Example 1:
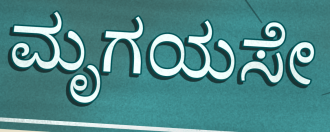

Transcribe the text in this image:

ಮೃಗಯಸೇ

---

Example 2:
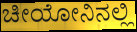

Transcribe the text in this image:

ಚೀಯೋನಿನಲ್ಲಿ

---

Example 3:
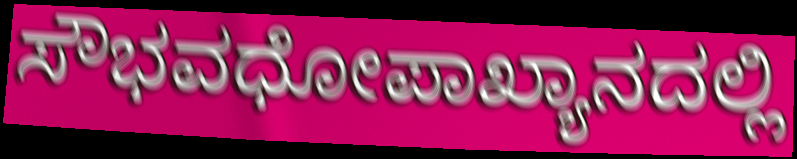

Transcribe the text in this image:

ಸೌಭವಧೋಪಾಖ್ಯಾನದಲ್ಲಿ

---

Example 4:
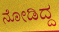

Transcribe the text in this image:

ನೋಡಿದ್ದ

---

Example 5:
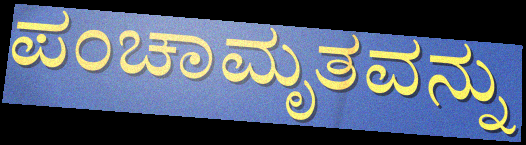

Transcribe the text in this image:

ಪಂಚಾಮೃತವನ್ನು